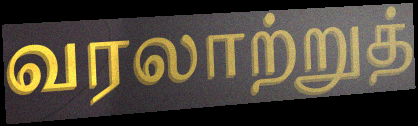
வரலாற்றுத்